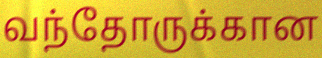
வந்தோருக்கான